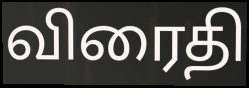
விரைதி